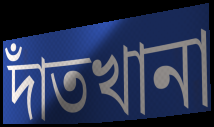
দাঁতখানা